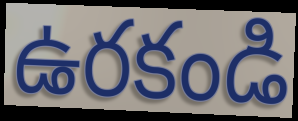
ఉరకండి